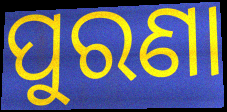
ପୁରଣା